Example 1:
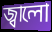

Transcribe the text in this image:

জ্বালো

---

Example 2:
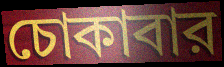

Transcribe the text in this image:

চোকাবার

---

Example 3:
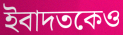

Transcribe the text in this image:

ইবাদতকেও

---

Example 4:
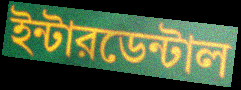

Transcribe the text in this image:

ইন্টারডেন্টাল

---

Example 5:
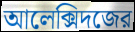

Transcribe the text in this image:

আলেক্সিদজের